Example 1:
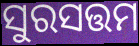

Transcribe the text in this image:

ସୁରସତ୍ତମ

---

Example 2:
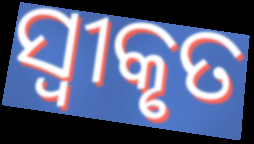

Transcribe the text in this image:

ସ୍ଵୀକୃତ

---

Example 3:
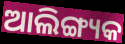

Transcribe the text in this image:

ଆଲିଙ୍ଗ୍ୟକ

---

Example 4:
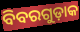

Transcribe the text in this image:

ବିବରଗୁଡ଼ାକ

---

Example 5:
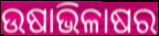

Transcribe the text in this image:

ଉଷାଭିଳାଷର